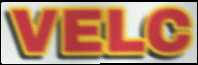
VELC